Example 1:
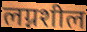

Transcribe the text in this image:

लग्नशील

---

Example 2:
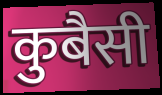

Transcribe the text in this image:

कुबैसी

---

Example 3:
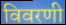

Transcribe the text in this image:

विवरणी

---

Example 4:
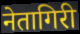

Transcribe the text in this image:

नेतागिरी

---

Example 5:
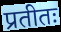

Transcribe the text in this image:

प्रतीतः